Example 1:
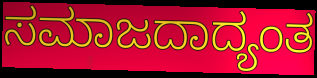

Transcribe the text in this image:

ಸಮಾಜದಾದ್ಯಂತ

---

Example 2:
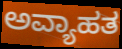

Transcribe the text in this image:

ಅವ್ಯಾಹತ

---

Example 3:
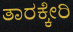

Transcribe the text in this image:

ತಾರಕ್ಕೇರಿ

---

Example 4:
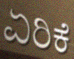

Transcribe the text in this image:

ಏರಿಕೆ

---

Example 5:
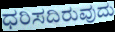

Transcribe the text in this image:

ಧರಿಸದಿರುವುದು